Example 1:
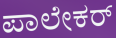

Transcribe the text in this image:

ಪಾಲೇಕರ್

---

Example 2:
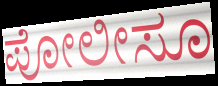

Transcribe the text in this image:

ಪೋಲೀಸೂ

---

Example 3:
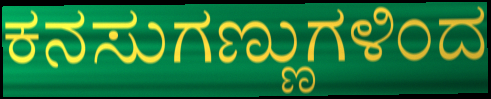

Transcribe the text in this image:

ಕನಸುಗಣ್ಣುಗಳಿಂದ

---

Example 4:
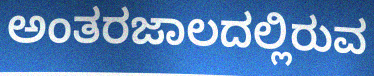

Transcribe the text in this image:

ಅಂತರಜಾಲದಲ್ಲಿರುವ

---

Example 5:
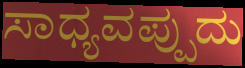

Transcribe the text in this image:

ಸಾಧ್ಯವಪ್ಪುದು